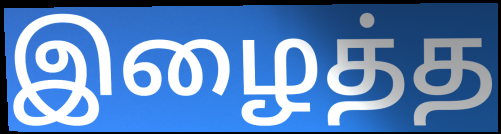
இழைத்த